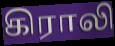
கிராலி